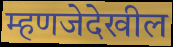
म्हणजेदेखील